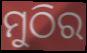
ମୁଠିର